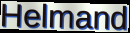
Helmand